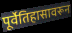
पूर्वेतिहासावरून